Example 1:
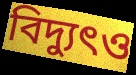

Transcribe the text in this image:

বিদ্যুৎও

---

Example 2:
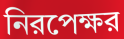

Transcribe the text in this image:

নিরপেক্ষর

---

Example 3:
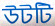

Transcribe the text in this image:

উটটি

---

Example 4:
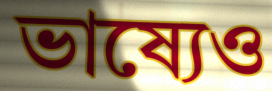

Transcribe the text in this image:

ভাষ্যেও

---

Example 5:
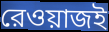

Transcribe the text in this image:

রেওয়াজই